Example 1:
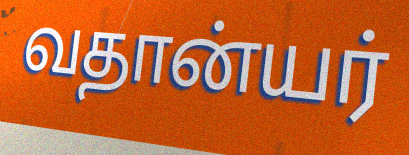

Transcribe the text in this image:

வதான்யர்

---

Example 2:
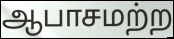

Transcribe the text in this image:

ஆபாசமற்ற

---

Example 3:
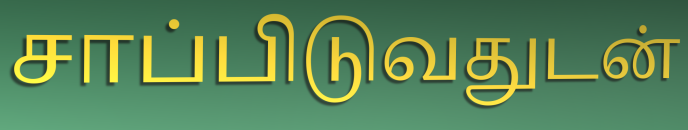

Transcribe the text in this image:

சாப்பிடுவதுடன்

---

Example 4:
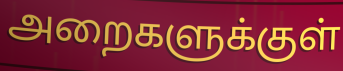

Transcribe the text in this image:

அறைகளுக்குள்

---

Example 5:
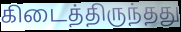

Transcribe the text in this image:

கிடைத்திருந்தது